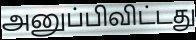
அனுப்பிவிட்டது